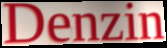
Denzin